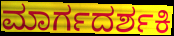
ಮಾರ್ಗದರ್ಶಕಿ